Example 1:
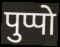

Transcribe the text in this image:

पुप्पो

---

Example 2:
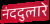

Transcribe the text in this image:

नंददुलारे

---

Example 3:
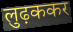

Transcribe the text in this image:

लुढ़ककर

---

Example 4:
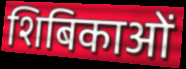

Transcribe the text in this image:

शिबिकाओं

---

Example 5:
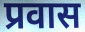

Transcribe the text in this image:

प्रवास